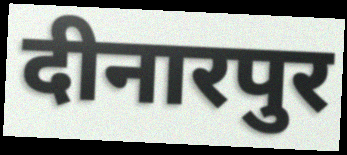
दीनारपुर